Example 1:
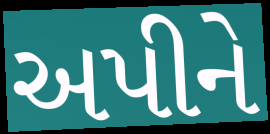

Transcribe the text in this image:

અપીને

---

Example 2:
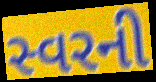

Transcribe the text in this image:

સ્વરની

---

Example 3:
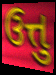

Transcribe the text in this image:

ઉત્તુ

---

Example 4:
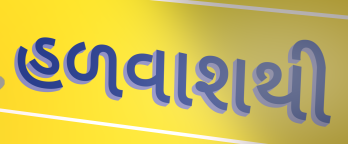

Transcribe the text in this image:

હળવાશથી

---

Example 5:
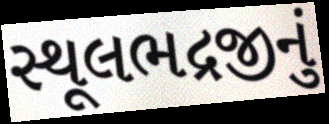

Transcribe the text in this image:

સ્થૂલભદ્રજીનું